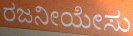
ರಜನೀಯೇಸು